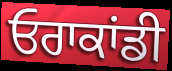
ਓਰਾਕਾਂਡੀ